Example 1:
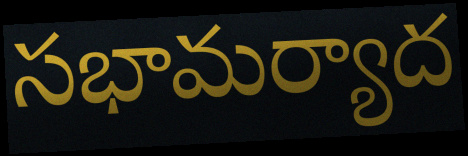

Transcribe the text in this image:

సభామర్యాద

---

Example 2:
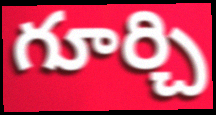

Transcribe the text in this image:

గూర్చి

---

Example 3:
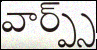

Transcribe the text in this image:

వార్ప్స్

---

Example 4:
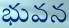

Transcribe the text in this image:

భువన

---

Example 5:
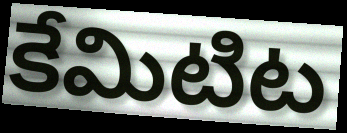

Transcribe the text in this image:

కేమిటిట